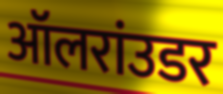
ऑलरांउडर